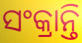
ସଂକ୍ରାନ୍ତି